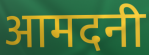
आमदनी